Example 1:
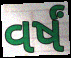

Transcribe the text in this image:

વર્ષં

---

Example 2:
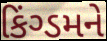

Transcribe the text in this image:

કિંગ્ડમને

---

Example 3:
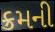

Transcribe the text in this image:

ક્રમની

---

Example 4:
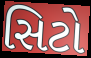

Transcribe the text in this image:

સિટો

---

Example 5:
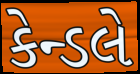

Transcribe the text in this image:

કેન્ડલે